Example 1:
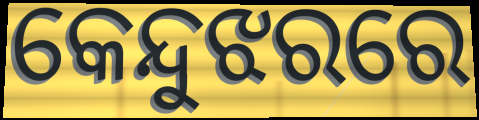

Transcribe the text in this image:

କେନ୍ଦୁଝରରେ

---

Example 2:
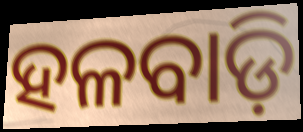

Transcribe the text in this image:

ହଳବାଡ଼ି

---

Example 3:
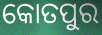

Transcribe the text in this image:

କୋତପୁର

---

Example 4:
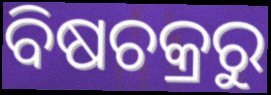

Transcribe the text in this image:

ବିଷଚକ୍ରରୁ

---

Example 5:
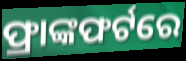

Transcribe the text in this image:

ଫ୍ରାଙ୍କଫର୍ଟରେ